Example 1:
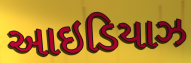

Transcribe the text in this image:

આઇડિયાઝ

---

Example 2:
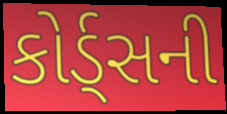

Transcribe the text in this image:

કોર્ડ્સની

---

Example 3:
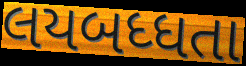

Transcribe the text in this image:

લયબધ્ધતા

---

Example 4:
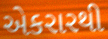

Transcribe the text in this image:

એકરારથી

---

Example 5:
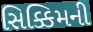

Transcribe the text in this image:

સિક્કિમની